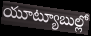
యూట్యూబుల్లో